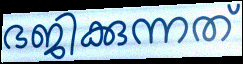
ഭജിക്കുന്നത്